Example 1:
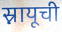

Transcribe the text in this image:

स्नायूची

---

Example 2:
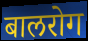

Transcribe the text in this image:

बालरोग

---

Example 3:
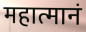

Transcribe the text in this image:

महात्मानं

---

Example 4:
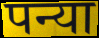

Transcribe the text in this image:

पन्या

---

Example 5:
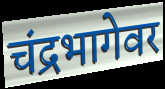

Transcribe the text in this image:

चंद्रभागेवर